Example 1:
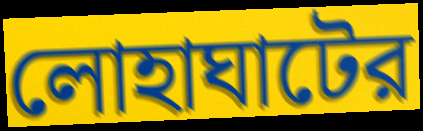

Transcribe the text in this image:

লোহাঘাটের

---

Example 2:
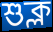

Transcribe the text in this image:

শুক্ল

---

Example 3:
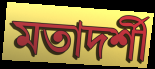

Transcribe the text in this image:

মতাদর্শী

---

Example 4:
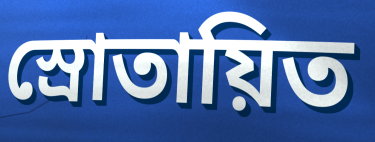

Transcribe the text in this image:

স্রোতায়িত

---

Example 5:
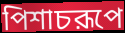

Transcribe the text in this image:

পিশাচরূপে